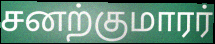
சனற்குமாரர்